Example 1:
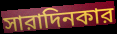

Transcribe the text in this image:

সারাদিনকার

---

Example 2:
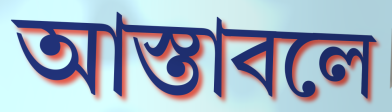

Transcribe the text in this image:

আস্তাবলে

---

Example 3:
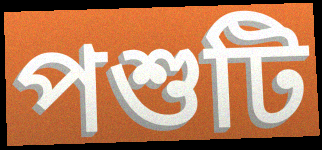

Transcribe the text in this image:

পশুটি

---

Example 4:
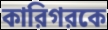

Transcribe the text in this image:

কারিগরকে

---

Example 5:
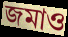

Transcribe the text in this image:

জমাও